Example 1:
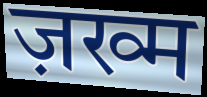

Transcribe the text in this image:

ज़ख्म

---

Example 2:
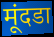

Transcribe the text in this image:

मूंदडा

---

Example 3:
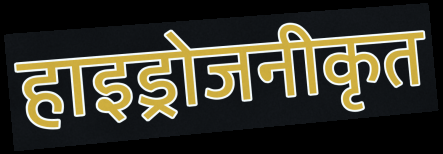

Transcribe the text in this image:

हाइड्रोजनीकृत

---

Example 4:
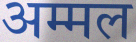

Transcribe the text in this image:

अम्मल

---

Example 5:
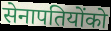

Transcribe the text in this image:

सेनापतियोंको